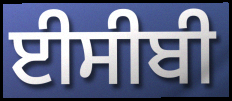
ਈਸੀਬੀ